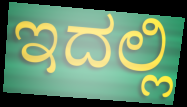
ಇದಲ್ಲಿ